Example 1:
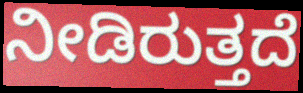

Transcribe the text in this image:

ನೀಡಿರುತ್ತದೆ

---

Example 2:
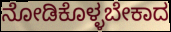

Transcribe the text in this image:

ನೋಡಿಕೊಳ್ಳಬೇಕಾದ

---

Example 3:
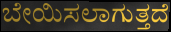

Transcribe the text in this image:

ಬೇಯಿಸಲಾಗುತ್ತದೆ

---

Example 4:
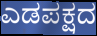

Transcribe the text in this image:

ಎಡಪಕ್ಷದ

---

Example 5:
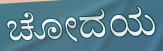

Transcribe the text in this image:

ಚೋದಯ